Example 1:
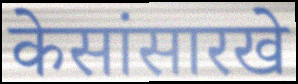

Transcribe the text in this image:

केसांसारखे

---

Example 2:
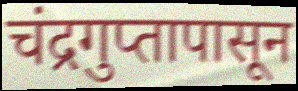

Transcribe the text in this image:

चंद्रगुप्तापासून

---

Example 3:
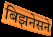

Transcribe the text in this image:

बिझनेसने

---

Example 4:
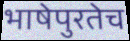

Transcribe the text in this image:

भाषेपुरतेच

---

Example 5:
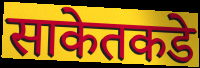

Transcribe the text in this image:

साकेतकडे